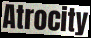
Atrocity